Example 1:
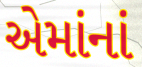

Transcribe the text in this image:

એમાંનાં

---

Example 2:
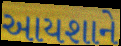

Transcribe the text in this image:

આયશાને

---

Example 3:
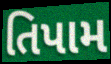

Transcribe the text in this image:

તિપામ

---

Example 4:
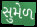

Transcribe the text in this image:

સુમેળ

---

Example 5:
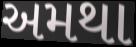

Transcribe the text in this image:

અમથા